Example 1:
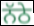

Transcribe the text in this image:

ਨੱਠੇ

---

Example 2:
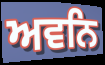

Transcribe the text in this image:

ਅਵਨਿ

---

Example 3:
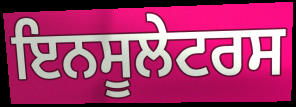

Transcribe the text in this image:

ਇਨਸੂਲੇਟਰਸ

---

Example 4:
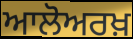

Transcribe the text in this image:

ਆਲੋਅਰਖ਼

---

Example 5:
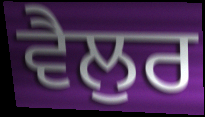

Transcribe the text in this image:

ਵੈਲੁਰ